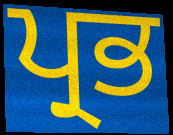
ਪ੍ਰਭ